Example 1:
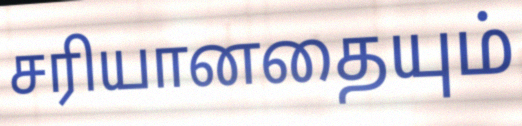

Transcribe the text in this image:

சரியானதையும்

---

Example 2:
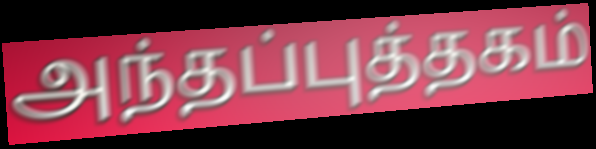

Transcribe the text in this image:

அந்தப்புத்தகம்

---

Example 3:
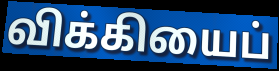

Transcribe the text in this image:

விக்கியைப்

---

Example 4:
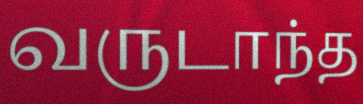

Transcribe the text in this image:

வருடாந்த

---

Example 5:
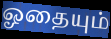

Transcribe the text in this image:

ஓதையும்